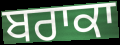
ਬਰਾਕਾ